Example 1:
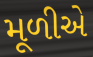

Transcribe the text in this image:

મૂળીએ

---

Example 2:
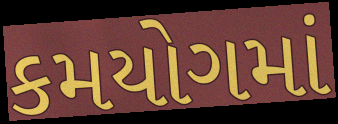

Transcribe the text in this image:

કમયોગમાં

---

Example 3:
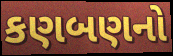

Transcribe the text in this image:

કણબણનો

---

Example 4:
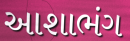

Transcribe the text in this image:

આશાભંગ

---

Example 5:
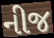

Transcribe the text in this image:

નીજ